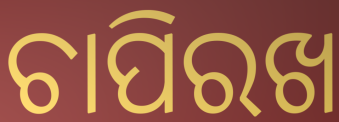
ଚାପିରଖ